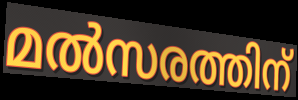
മൽസരത്തിന്